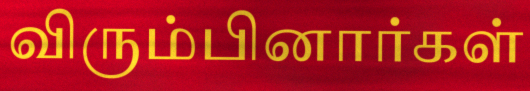
விரும்பினார்கள்